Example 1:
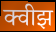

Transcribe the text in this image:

क्वीझ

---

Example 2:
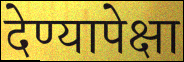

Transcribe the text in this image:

देण्यापेक्षा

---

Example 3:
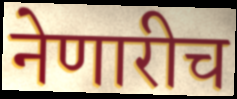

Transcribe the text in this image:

नेणारीच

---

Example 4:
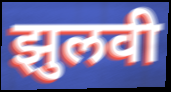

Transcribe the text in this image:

झुलवी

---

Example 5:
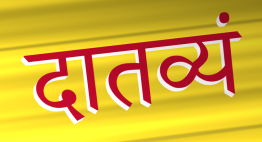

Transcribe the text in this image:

दातव्यं